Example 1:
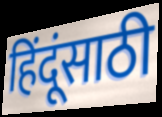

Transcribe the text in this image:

हिंदूंसाठी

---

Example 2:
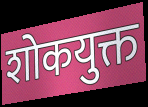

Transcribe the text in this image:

शोकयुक्त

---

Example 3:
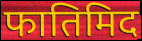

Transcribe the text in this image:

फातिमिद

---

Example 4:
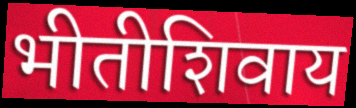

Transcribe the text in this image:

भीतीशिवाय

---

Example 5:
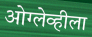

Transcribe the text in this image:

ओग्लेव्हीला